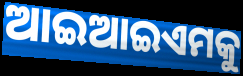
ଆଇଆଇଏମକୁ